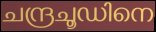
ചന്ദ്രചൂഡിനെ